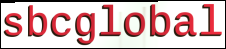
sbcglobal